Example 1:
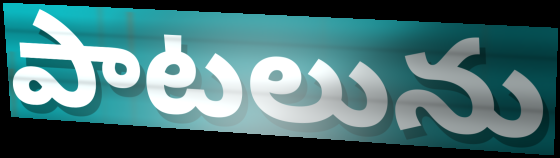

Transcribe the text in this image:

పాటలును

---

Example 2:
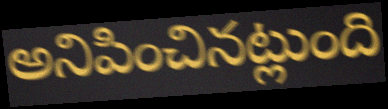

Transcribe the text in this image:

అనిపించినట్లుంది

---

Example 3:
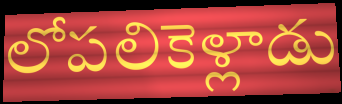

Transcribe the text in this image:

లోపలికెళ్లాడు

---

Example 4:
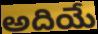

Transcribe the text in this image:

అదియే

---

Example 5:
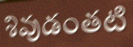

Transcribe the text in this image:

శివుడంతటి